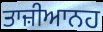
ਤਾਜ਼ੀਆਨਹ